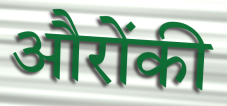
औरोंकी